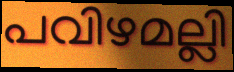
പവിഴമല്ലി